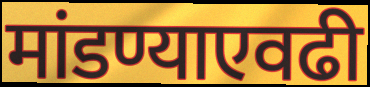
मांडण्याएवढी